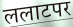
ललाटपर